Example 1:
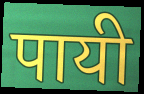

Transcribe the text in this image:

पायी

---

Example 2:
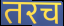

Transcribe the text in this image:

तरच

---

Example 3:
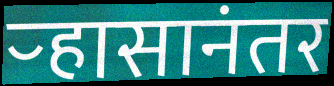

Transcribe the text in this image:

ऱ्हासानंतर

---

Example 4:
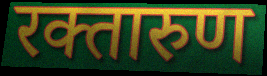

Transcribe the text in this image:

रक्तारुण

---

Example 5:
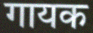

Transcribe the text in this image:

गायक